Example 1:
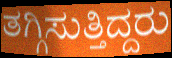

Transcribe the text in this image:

ತಗ್ಗಿಸುತ್ತಿದ್ದರು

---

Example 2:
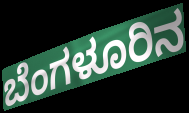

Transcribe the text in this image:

ಬೆಂಗಳೂರಿನ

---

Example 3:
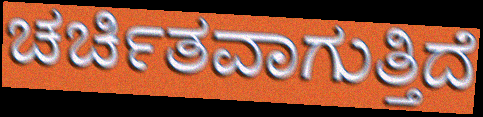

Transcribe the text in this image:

ಚರ್ಚಿತವಾಗುತ್ತಿದೆ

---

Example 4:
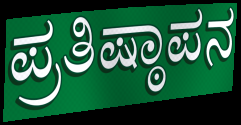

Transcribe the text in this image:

ಪ್ರತಿಷ್ಠಾಪನ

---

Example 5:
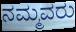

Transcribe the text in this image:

ನಮ್ಮವರು